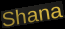
Shana